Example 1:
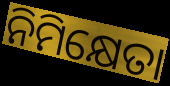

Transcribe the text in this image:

ନିମିକ୍ଷେତା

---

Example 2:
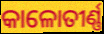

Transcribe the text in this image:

କାଳୋତୀର୍ଣ୍ଣ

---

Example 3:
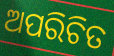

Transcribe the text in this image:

ଅପରିଚିତ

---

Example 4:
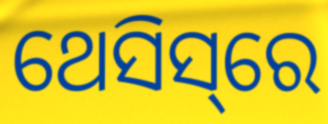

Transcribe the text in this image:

ଥେସିସ୍‌ରେ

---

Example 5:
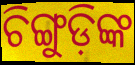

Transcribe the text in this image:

ଚିଙ୍ଗୁଡ଼ିଙ୍କ